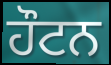
ਹੌਟਨ